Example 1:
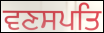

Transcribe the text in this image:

ਵਣਸਪਤਿ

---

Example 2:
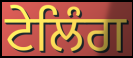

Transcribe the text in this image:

ਟੇਲਿੰਗ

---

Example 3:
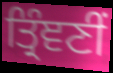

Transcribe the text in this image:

ਤ੍ਰਿੰਞਣੀਂ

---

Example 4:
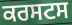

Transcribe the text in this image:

ਕਰਸਟਸ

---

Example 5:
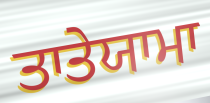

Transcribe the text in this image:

ਤਾਤੇਯਾਮਾ